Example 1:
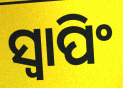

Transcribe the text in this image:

ସ୍ବାପିଂ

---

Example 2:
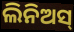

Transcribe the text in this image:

ଲିନିଅସ୍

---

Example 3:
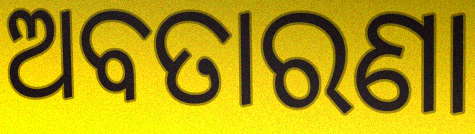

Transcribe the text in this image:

ଅବତାରଣା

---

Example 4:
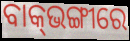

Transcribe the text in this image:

ବାକ୍‍ଭଙ୍ଗୀରେ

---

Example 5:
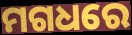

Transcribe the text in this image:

ମଗଧରେ